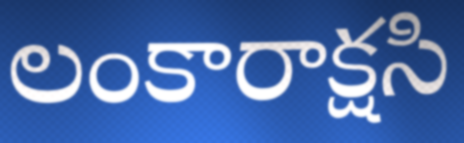
లంకారాక్షసి